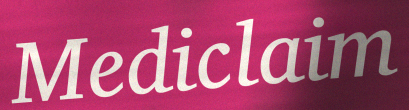
Mediclaim